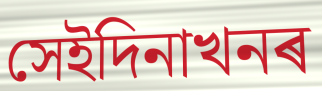
সেইদিনাখনৰ